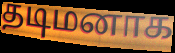
தடிமனாக